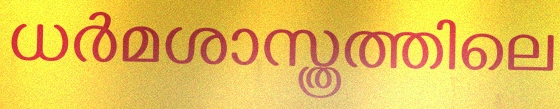
ധർമശാസ്ത്രത്തിലെ